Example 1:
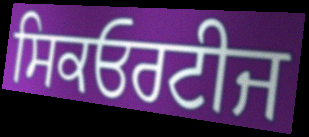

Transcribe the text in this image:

ਸਿਕਓਰਟੀਜ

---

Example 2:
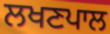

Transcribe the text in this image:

ਲਖਣਪਾਲ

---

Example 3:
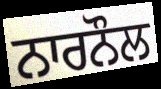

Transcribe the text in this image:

ਨਾਰਨੌਲ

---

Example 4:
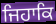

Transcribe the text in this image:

ਜਿਹਾਕਿ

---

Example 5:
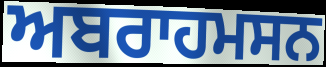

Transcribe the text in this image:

ਅਬਰਾਹਮਸਨ